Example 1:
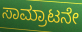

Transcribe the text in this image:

ಸಾಮ್ರಾಟನೇ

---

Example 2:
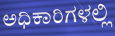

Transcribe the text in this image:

ಅಧಿಕಾರಿಗಳಲ್ಲಿ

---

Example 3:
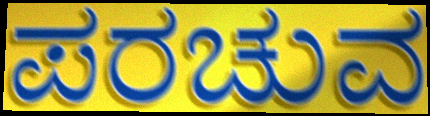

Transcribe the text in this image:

ಪರಚುವ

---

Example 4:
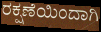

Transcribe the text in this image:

ರಕ್ಷಣೆಯಿಂದಾಗಿ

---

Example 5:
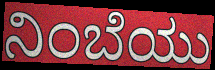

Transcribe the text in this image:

ನಿಂಬೆಯು